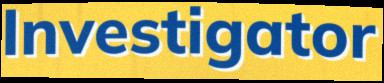
Investigator